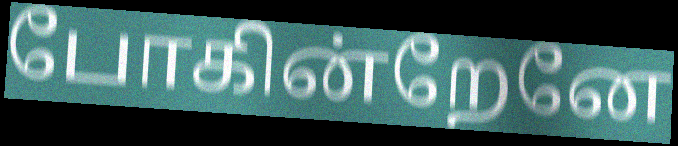
போகின்றேனே